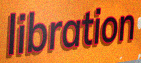
libration